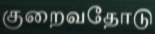
குறைவதோடு